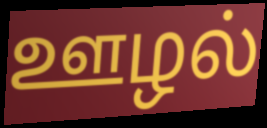
ஊழல்